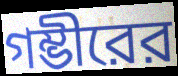
গম্ভীরের